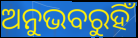
ଅନୁଭବରୁହିଁ